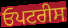
ਓਪਟਰੀਸ